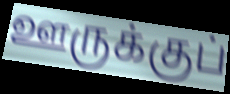
ஊருக்குப்